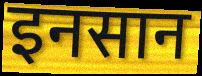
इनसान